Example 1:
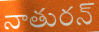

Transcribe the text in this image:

నాతురన్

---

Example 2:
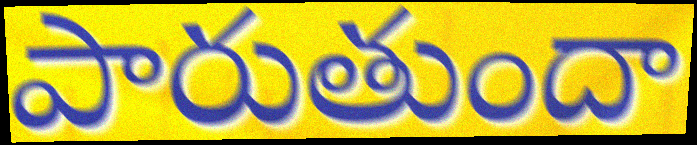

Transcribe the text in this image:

పారుతుందా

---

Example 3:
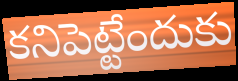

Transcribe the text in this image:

కనిపెట్టేందుకు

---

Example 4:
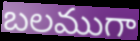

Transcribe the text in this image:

బలముగా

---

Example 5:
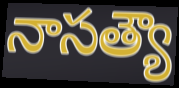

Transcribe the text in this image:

నాసత్యౌ